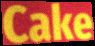
Cake